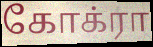
கோக்ரா